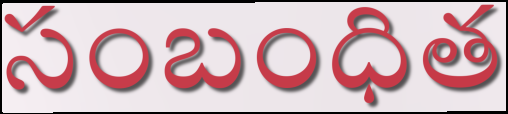
సంబంధిత